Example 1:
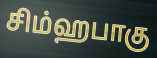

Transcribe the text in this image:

சிம்ஹபாகு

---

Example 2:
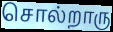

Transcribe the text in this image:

சொல்றாரு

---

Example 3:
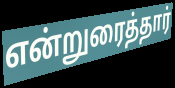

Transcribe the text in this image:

என்றுரைத்தார்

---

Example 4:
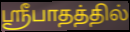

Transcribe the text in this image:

ஸ்ரீபாதத்தில்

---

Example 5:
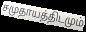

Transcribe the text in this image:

சமுதாயத்திடமும்